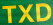
TXD